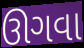
ઊગવા